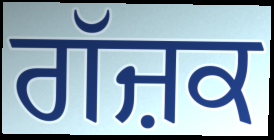
ਗੱਜ਼ਕ